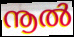
നൂൽ